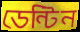
ডেন্টিন